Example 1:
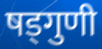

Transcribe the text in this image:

षड्गुणी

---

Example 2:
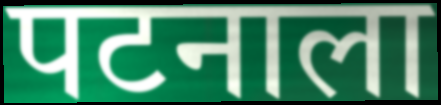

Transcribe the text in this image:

पटनाला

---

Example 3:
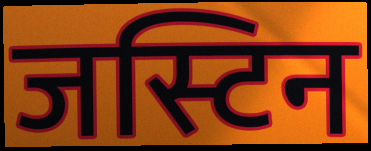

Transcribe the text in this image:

जस्टिन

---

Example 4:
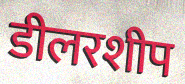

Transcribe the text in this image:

डीलरशीप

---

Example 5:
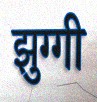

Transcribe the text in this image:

झुग्गी